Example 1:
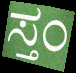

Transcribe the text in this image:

ಸ್ತಂ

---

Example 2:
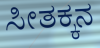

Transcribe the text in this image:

ಸೀತಕ್ಕನ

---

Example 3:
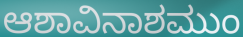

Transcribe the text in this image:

ಆಶಾವಿನಾಶಮುಂ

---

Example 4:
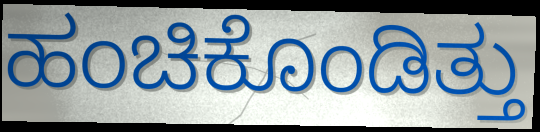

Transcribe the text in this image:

ಹಂಚಿಕೊಂಡಿತ್ತು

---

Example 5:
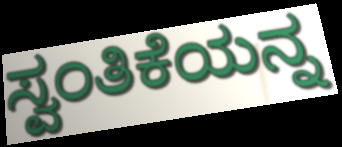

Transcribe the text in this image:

ಸ್ವಂತಿಕೆಯನ್ನ